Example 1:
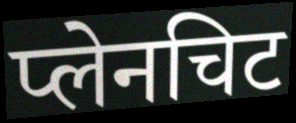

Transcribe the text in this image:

प्लेनचिट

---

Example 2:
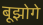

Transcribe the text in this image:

बूझोगे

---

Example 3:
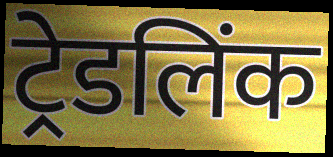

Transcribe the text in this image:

ट्रेडलिंक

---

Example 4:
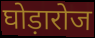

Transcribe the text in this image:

घोड़ारोज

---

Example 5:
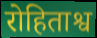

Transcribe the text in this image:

रोहिताश्व